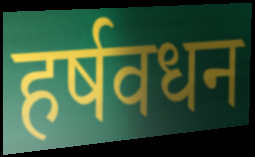
हर्षवधन